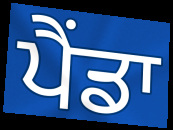
ਪੈਂਡਾ